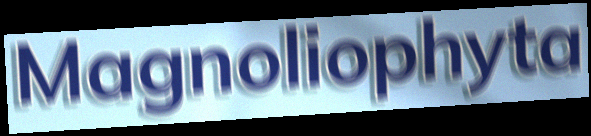
Magnoliophyta